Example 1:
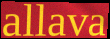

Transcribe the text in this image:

allava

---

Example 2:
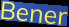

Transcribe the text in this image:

Bener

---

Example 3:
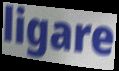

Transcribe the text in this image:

ligare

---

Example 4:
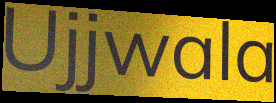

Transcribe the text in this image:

Ujjwala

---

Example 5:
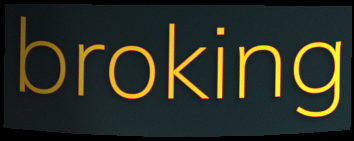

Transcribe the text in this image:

broking